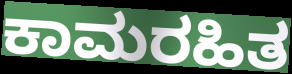
ಕಾಮರಹಿತ